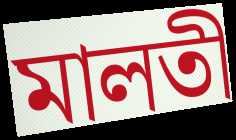
মালতী